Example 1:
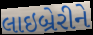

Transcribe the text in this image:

લાઇબ્રેરીને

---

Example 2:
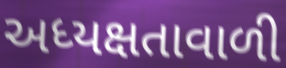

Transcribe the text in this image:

અધ્યક્ષતાવાળી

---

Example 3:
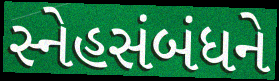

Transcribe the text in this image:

સ્નેહસંબંધને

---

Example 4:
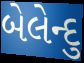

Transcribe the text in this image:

બેલેન્દુ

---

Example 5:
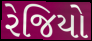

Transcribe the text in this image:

રેજિયો